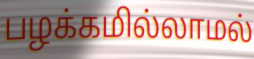
பழக்கமில்லாமல்